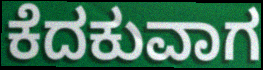
ಕೆದಕುವಾಗ